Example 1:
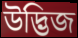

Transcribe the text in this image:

উদ্ভিজ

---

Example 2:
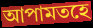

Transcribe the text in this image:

আপামতহে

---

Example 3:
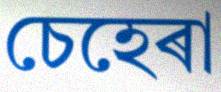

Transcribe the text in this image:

চেহেৰা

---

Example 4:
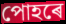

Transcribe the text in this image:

পোহৰে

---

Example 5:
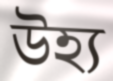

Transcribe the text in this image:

উহ্য